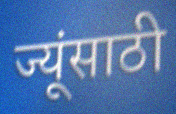
ज्यूंसाठी